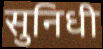
सुनिधी